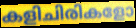
കളിചിരികളോ